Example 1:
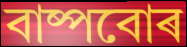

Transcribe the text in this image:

বাষ্পবোৰ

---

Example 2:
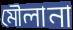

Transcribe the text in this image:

মৌলানা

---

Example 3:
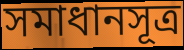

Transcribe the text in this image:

সমাধানসূত্ৰ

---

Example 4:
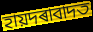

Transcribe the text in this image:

হায়দৰাবাদত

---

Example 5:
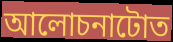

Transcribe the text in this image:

আলোচনাটোত